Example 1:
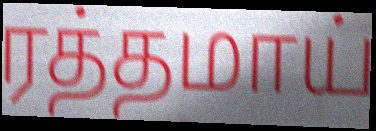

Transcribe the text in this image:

ரத்தமாய்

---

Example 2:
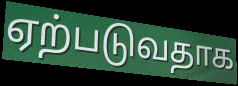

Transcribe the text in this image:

ஏற்படுவதாக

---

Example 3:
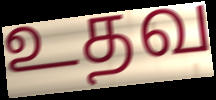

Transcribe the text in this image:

உதவ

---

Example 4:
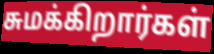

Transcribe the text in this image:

சுமக்கிறார்கள்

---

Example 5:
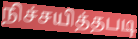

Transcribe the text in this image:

நிச்சயித்தபடி